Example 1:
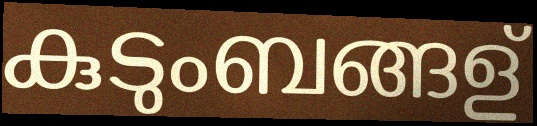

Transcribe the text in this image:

കുടുംബങ്ങള്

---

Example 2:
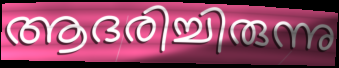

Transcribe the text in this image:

ആദരിച്ചിരുന്നു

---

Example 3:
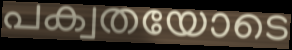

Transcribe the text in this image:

പക്വതയോടെ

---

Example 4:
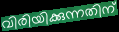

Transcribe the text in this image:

വിരിയിക്കുന്നതിന്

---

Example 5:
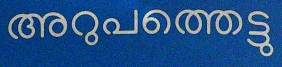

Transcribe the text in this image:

അറുപത്തെട്ടു